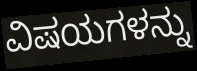
ವಿಷಯಗಳನ್ನು